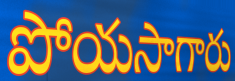
పోయసాగారు